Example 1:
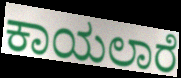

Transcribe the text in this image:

ಕಾಯಲಾರೆ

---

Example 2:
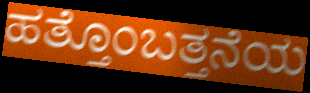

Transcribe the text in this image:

ಹತ್ತೊಂಬತ್ತನೆಯ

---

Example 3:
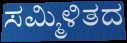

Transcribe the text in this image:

ಸಮ್ಮಿಳಿತದ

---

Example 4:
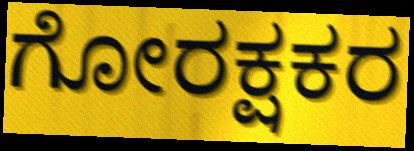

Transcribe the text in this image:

ಗೋರಕ್ಷಕರ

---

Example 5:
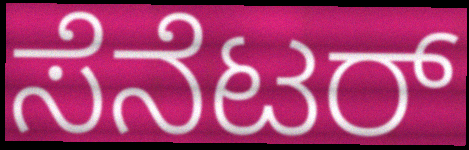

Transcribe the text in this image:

ಸೆನೆಟರ್